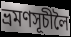
ভ্ৰমণসূচীলৈ